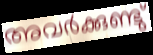
അവർക്കുണ്ടു്